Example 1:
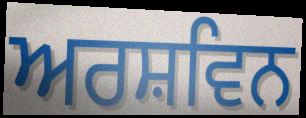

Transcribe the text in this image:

ਅਰਸ਼ਵਿਨ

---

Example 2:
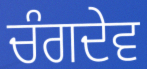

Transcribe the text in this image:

ਚੰਗਦੇਵ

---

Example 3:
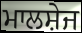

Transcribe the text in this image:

ਮਾਲਸ਼ੇਜ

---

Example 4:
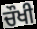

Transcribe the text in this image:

ਚੌਖੀ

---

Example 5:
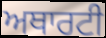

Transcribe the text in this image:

ਅਥਾਰਟੀ